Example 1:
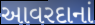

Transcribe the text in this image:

આવરદાનાં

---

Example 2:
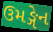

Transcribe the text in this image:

ઉમઙ્ગેન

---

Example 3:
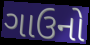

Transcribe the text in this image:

ગાઉનો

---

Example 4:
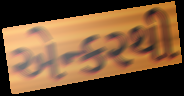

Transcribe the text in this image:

એન્કરથી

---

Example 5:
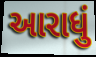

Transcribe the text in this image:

આરાધું